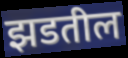
झडतील